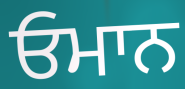
ਓਮਾਨ